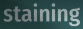
staining